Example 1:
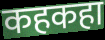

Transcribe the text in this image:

कहकहा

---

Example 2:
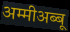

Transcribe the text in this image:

अम्मीअब्बू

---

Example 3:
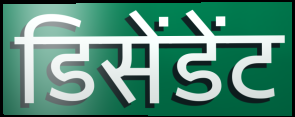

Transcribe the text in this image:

डिसेंडेंट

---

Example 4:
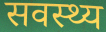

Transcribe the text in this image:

सवस्थ्य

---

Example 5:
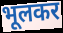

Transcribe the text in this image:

भूलकर